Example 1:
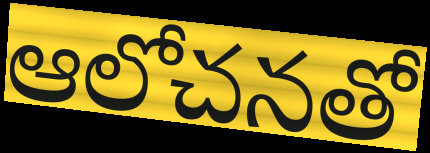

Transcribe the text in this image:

ఆలోచనతో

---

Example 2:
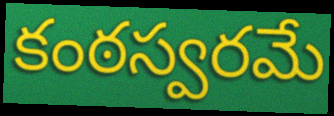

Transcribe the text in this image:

కంఠస్వరమే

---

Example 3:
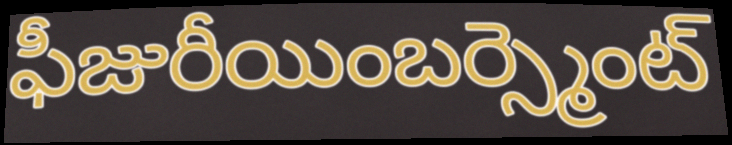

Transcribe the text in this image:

ఫీజురీయింబర్స్మెంట్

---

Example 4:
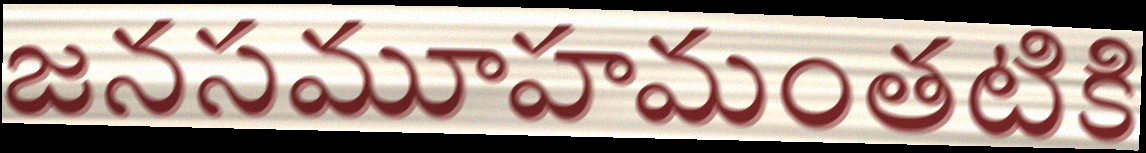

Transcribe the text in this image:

జనసమూహమంతటికి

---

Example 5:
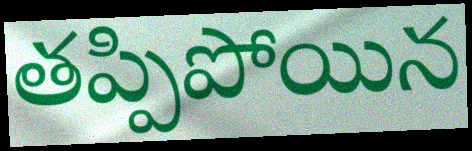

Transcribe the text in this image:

తప్పిపోయిన